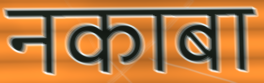
नकाबा